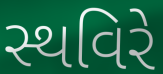
સ્થવિરે